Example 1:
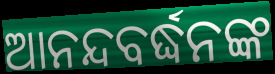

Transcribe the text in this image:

ଆନନ୍ଦବର୍ଦ୍ଧନଙ୍କ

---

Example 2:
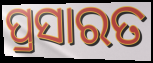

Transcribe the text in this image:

ପ୍ରସାରତ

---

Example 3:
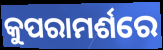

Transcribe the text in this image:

କୁପରାମର୍ଶରେ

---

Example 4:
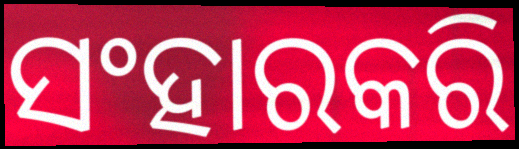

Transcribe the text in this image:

ସଂହାରକରି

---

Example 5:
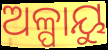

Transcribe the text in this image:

ଅଳ୍ପାୟୁ